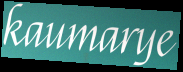
kaumarye